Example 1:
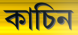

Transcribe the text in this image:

কাচিন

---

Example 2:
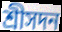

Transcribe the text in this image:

শ্রীসদন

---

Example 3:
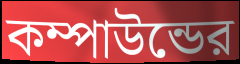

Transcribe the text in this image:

কম্পাউন্ডের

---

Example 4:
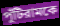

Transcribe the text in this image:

পুঁটিরামকে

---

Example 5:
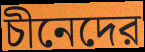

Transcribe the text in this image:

চীনেদের